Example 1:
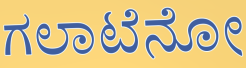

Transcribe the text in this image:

ಗಲಾಟೆನೋ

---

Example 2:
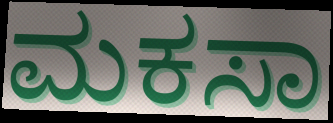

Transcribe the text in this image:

ಮಕಸಾ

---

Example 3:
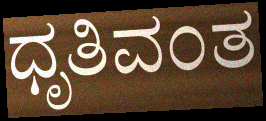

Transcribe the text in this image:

ಧೃತಿವಂತ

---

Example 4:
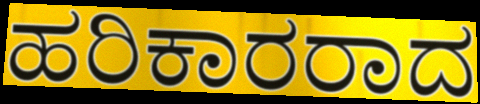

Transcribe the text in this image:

ಹರಿಕಾರರಾದ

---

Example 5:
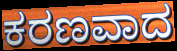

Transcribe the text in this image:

ಕರಣವಾದ